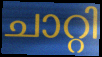
ചാറ്റി